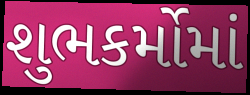
શુભકર્મોમાં